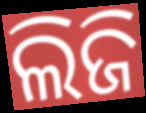
ଲିଜି